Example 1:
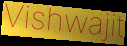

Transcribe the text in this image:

Vishwajit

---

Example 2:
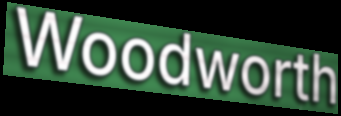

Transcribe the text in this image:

Woodworth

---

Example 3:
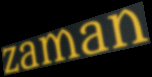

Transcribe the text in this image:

zaman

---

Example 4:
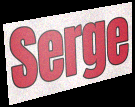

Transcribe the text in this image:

Serge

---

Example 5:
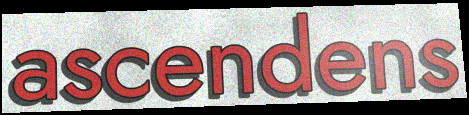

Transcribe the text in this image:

ascendens